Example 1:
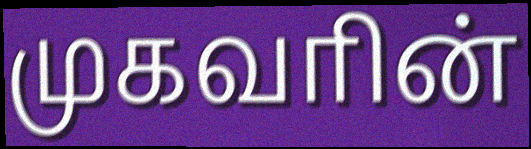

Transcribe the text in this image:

முகவரின்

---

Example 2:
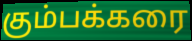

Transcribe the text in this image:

கும்பக்கரை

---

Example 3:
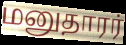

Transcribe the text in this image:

மனுதாரர்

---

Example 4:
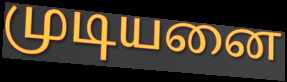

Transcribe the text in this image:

முடியனை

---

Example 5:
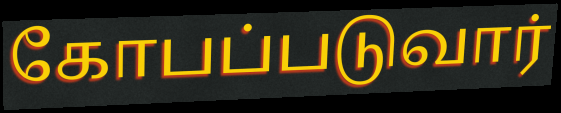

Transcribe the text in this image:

கோபப்படுவார்